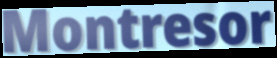
Montresor